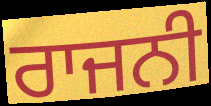
ਰਾਜਨੀ